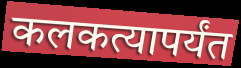
कलकत्यापर्यंत